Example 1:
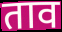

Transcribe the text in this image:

ताव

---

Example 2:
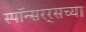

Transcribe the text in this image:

स्पॉन्सरर्सच्या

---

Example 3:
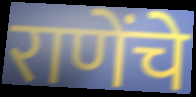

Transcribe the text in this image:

राणेंचे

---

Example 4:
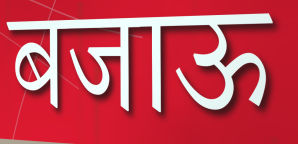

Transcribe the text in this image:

बजाऊ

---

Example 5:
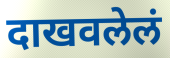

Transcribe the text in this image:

दाखवलेलं